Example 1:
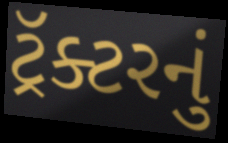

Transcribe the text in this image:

ટ્રૅક્ટરનું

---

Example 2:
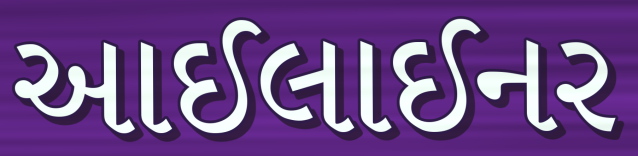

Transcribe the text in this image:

આઈલાઈનર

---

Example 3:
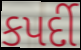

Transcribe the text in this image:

કપર્દી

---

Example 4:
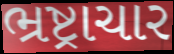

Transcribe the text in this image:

ભ્રષ્ટ્રાચાર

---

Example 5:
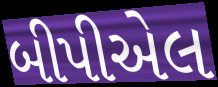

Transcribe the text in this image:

બીપીએલ